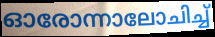
ഓരോന്നാലോചിച്ച്